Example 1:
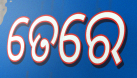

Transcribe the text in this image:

ତେରେ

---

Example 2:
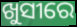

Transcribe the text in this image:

ଖୁସୀରେ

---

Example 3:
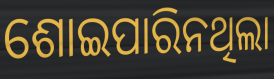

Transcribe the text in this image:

ଶୋଇପାରିନଥିଲା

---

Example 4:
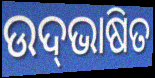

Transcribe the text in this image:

ଉଦ୍‍ଭାଷିତ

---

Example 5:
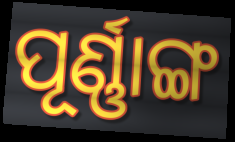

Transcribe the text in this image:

ପୂର୍ଣ୍ଣାଙ୍ଗ